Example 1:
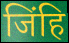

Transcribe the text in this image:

जिंहि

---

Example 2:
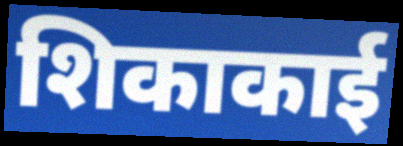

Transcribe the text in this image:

शिकाकाई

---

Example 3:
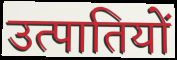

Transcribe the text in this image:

उत्पातियों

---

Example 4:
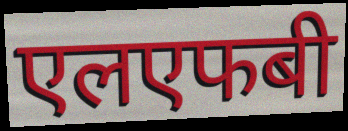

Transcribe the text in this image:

एलएफबी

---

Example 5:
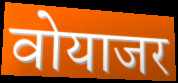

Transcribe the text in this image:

वोयाजर